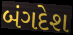
બંગદેશ